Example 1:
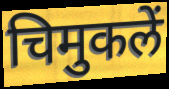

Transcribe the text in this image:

चिमुकलें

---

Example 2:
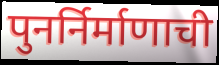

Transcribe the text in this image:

पुनर्निर्माणाची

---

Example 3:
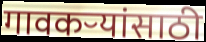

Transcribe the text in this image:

गावकऱ्यांसाठी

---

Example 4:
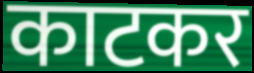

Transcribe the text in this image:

काटकर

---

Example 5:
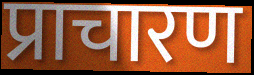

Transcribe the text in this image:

प्राचारण